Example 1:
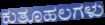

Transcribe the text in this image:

ಕುತೂಹಲಗಳು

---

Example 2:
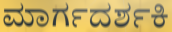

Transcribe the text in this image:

ಮಾರ್ಗದರ್ಶಕಿ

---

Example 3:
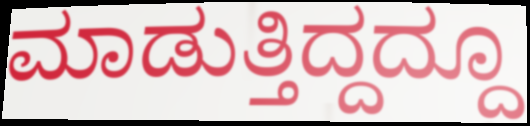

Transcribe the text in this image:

ಮಾಡುತ್ತಿದ್ದದ್ದೂ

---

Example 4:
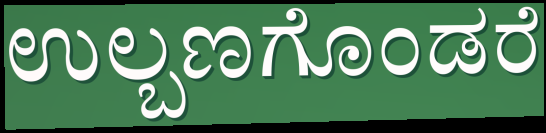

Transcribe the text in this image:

ಉಲ್ಬಣಗೊಂಡರೆ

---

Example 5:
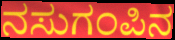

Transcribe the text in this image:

ನಸುಗಂಪಿನ